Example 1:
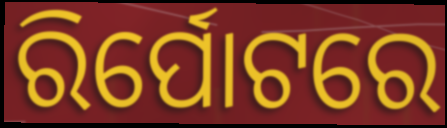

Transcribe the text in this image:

ରିର୍ପୋଟରେ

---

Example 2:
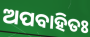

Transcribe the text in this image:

ଅପବାହିତଃ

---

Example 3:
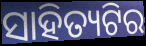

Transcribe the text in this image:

ସାହିତ୍ୟଟିର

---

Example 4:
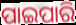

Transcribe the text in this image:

ପାଇପାରି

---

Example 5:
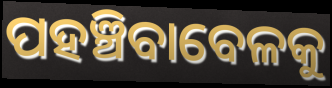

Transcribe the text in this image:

ପହଞ୍ଚିବାବେଳକୁ